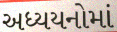
અધ્યયનોમાં